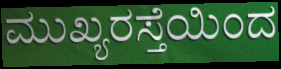
ಮುಖ್ಯರಸ್ತೆಯಿಂದ